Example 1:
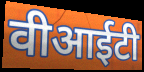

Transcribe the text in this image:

वीआईटी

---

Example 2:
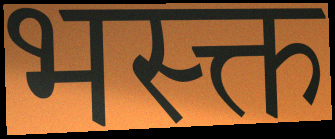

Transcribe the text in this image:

भस्क्त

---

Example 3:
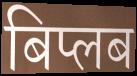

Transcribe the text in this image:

बिप्लब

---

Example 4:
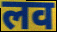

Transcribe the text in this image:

लव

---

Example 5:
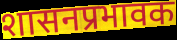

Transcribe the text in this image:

शासनप्रभावक